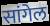
सांगेल